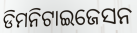
ଡିମନିଟାଇଜେସନ